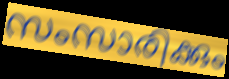
സംസാരിക്കും